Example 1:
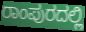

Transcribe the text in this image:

ರಾಂಪುರದಲ್ಲಿ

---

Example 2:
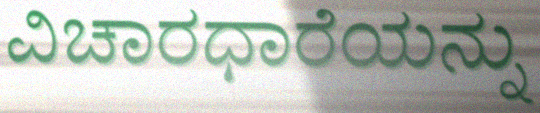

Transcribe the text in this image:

ವಿಚಾರಧಾರೆಯನ್ನು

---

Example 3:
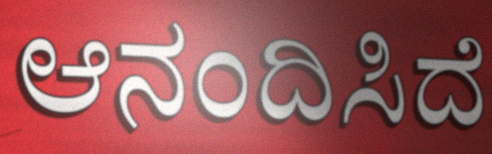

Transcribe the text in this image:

ಆನಂದಿಸಿದೆ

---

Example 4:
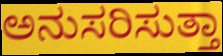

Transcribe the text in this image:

ಅನುಸರಿಸುತ್ತಾ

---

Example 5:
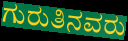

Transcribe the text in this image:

ಗುರುತಿನವರು